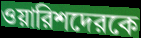
ওয়ারিশদেরকে